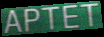
APTET